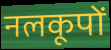
नलकूपों